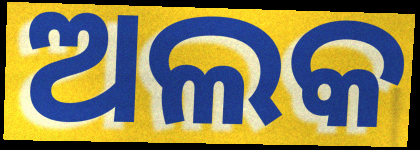
ଅଲକ